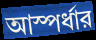
আস্পর্ধার